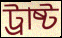
ট্রাষ্ট